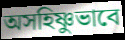
অসহিষ্ণুভাবে